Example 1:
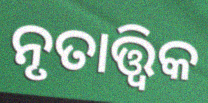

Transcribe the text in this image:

ନୃତାତ୍ତ୍ବିକ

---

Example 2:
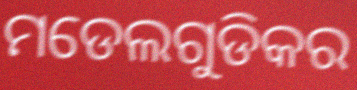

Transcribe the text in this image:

ମଡେଲଗୁଡିକର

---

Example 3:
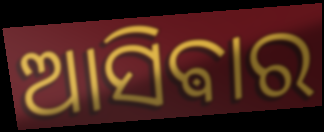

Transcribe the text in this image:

ଆସିଵାର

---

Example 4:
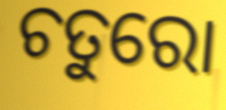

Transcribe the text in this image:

ଚତୁରୋ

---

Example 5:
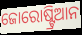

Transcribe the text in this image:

ଜୋରୋଷ୍ଟ୍ରିଆନ